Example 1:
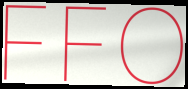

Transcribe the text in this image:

FFO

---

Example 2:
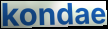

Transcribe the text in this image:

kondae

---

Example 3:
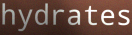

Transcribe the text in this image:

hydrates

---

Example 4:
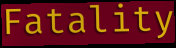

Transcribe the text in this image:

Fatality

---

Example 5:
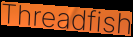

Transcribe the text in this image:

Threadfish